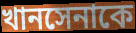
খানসেনাকে